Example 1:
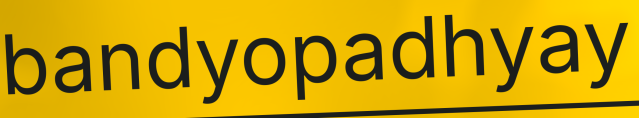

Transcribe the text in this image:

bandyopadhyay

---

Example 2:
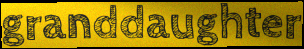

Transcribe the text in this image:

granddaughter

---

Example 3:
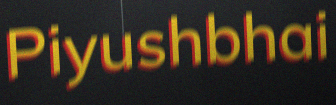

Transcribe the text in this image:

Piyushbhai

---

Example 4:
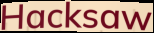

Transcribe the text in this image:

Hacksaw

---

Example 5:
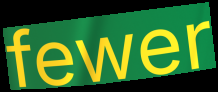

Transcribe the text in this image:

fewer